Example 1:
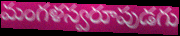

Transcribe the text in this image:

మంగళస్వరూపుడగు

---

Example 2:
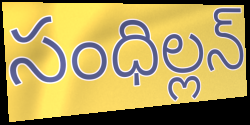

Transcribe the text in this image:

సంధిల్లన్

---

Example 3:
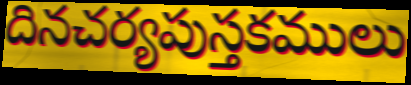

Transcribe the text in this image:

దినచర్యపుస్తకములు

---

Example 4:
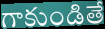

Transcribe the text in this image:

గాకుండితే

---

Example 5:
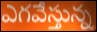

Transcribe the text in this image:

ఎగవేస్తున్న